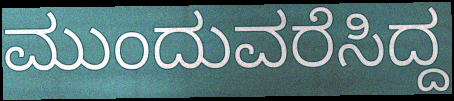
ಮುಂದುವರೆಸಿದ್ದ